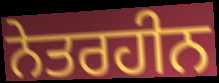
ਨੇਤਰਹੀਨ